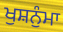
ਖੁਸ਼ਨੁੰਮਾ